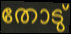
തോടു്